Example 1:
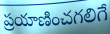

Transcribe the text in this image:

ప్రయాణించగలిగే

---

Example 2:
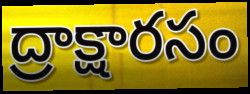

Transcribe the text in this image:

ద్రాక్షారసం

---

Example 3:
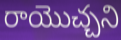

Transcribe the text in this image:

రాయొచ్చని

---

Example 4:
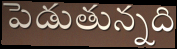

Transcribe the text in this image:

పెడుతున్నది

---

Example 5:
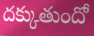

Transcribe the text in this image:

దక్కుతుందో